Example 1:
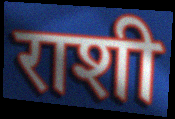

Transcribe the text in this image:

राशी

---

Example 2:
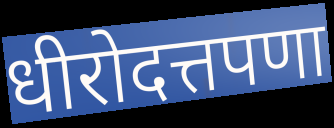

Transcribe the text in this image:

धीरोदत्तपणा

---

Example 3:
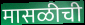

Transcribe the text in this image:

मासळीची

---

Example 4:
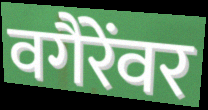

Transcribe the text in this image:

वगैरेंवर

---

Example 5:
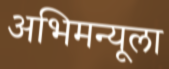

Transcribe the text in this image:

अभिमन्यूला